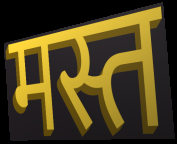
मस्त